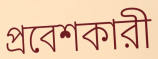
প্রবেশকারী